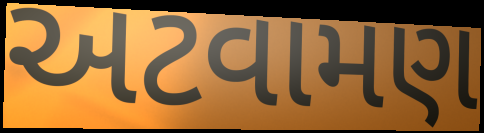
અટવામણ